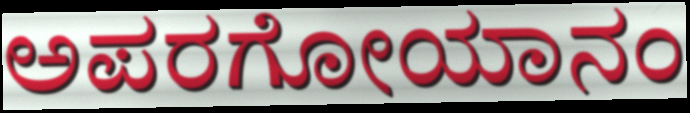
ಅಪರಗೋಯಾನಂ